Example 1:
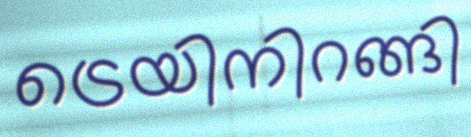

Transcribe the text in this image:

ട്രെയിനിറങ്ങി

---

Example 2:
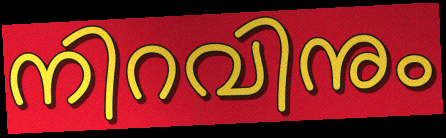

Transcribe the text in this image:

നിറവിനും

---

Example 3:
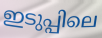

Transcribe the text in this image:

ഇടുപ്പിലെ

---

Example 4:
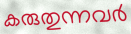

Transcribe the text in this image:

കരുതുന്നവർ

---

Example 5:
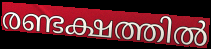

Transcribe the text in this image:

രണ്ടക്ഷത്തിൽ